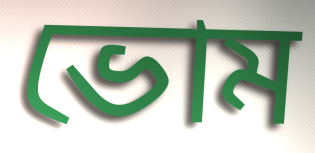
ভোম